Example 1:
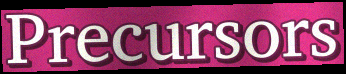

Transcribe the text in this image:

Precursors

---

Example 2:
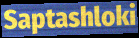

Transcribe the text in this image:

Saptashloki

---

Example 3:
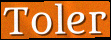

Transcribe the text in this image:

Toler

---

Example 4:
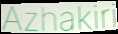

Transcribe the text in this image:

Azhakiri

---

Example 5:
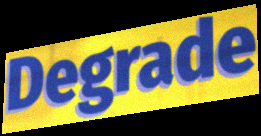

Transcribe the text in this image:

Degrade